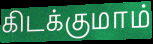
கிடக்குமாம்